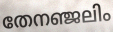
തേനഞ്ജലിം